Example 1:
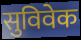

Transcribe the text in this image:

सुविवेक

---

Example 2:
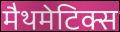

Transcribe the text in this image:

मैथमेटिक्स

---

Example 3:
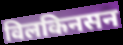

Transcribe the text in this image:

विलकिनसन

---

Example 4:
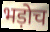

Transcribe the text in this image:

भड़ोच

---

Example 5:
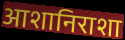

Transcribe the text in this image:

आशानिराशा